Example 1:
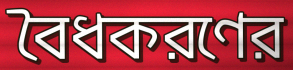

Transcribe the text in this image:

বৈধকরণের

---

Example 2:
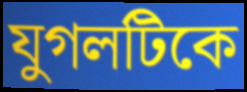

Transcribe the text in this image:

যুগলটিকে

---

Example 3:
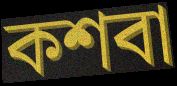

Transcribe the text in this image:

কশবা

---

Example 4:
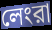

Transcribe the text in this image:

লেংরা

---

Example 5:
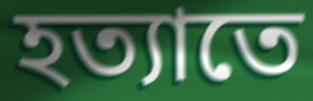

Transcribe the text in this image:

হত্যাতে